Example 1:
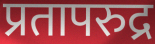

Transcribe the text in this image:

प्रतापरुद्र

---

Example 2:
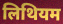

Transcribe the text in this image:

लिथियम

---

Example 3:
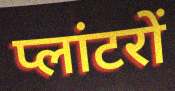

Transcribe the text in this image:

प्लांटरों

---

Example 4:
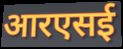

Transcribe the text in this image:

आरएसई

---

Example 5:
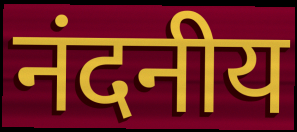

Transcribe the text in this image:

नंदनीय